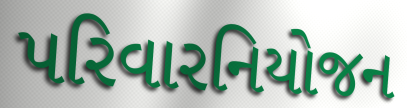
પરિવારનિયોજન